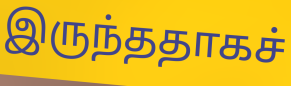
இருந்ததாகச்